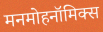
मनमोहनॉमिक्स